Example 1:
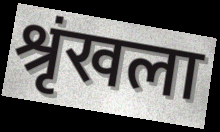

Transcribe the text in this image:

श्रृंखला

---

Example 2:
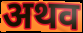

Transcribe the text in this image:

अथव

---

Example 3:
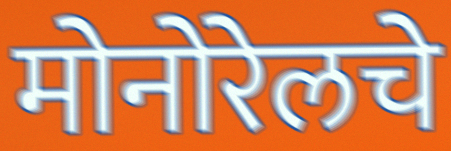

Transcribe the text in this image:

मोनोरेलचे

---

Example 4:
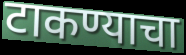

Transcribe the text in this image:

टाकण्याचा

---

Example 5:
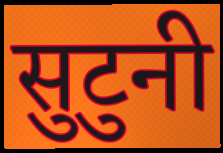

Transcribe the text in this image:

सुटुनी